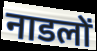
नाडलों